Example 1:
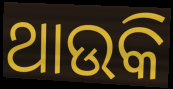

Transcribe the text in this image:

ଥାଉକି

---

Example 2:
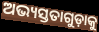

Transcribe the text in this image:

ଅଭ୍ୟସ୍ତତାଗୁଡ଼ାକୁ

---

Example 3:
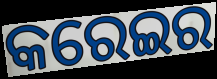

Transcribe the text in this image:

କରେଇର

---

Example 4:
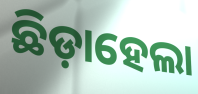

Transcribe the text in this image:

ଛିଡ଼ାହେଲା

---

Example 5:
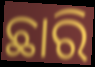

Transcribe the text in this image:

ଛାରି